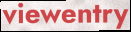
viewentry